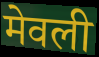
मेवली